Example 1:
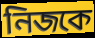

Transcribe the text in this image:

নিজকে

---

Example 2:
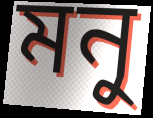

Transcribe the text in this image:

মনু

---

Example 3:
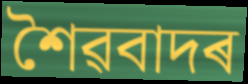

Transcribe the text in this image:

শৈৱবাদৰ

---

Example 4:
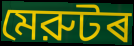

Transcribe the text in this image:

মেৰুটৰ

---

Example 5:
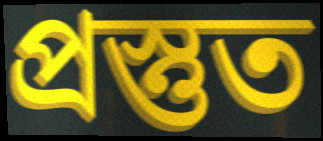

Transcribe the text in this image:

প্ৰস্তুত